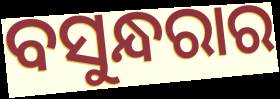
ବସୁନ୍ଧରାର